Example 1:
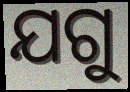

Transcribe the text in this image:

ଯଗୁ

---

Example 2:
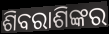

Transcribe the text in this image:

ଶିବରାଶିଙ୍କର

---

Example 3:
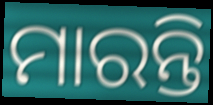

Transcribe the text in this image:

ମାରନ୍ତି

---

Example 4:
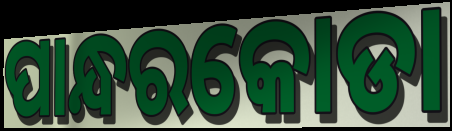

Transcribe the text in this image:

ପାନ୍ଧରକୋଡା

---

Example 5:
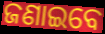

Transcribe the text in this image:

ଜଣାଇବେ